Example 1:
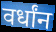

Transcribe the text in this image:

वर्धांन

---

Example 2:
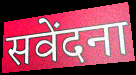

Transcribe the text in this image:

सवेंदना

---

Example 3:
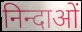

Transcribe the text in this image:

निन्दाओं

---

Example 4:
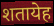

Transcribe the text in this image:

शतायेह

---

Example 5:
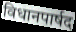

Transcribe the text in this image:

विधानपार्षद